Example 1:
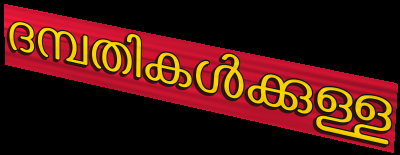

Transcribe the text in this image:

ദമ്പതികൾക്കുള്ള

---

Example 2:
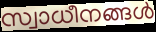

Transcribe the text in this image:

സ്വാധീനങ്ങൾ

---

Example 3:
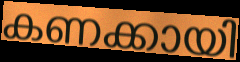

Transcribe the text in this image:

കണക്കായി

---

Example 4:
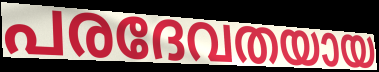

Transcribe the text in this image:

പരദേവതയായ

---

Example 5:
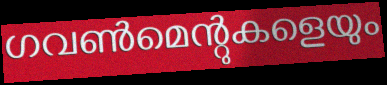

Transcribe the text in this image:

ഗവൺമെന്റുകളെയും